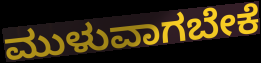
ಮುಳುವಾಗಬೇಕೆ